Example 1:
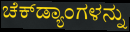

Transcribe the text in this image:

ಚೆಕ್‌ಡ್ಯಾಂಗಳನ್ನು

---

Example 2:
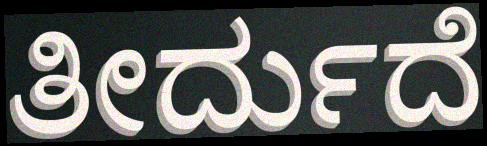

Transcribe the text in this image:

ತೀರ್ದುದೆ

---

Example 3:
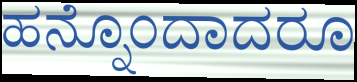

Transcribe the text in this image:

ಹನ್ನೊಂದಾದರೂ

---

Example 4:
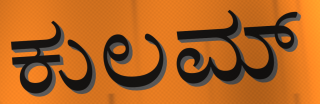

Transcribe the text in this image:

ಕುಲಮ್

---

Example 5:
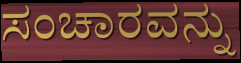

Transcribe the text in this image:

ಸಂಚಾರವನ್ನು